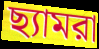
ছ্যামরা